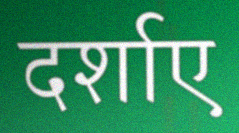
दर्शाए